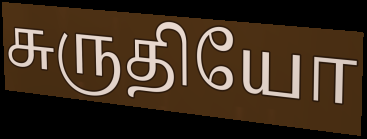
சுருதியோ